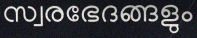
സ്വരഭേദങ്ങളും